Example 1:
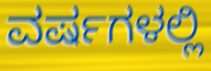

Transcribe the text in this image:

ವರ್ಷಗಳಲ್ಲಿ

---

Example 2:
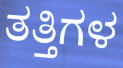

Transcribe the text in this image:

ತತ್ತಿಗಳ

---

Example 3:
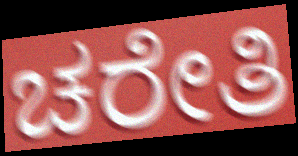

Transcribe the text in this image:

ಚರೇತಿ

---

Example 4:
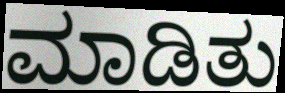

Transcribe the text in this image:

ಮಾಡಿತು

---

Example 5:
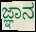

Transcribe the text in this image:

ಜ್ಞಾನ